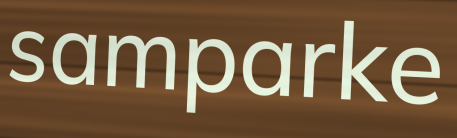
samparke